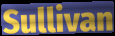
Sullivan